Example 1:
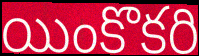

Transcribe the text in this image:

యింకొకరి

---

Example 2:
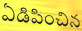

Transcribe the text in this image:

ఏడిపించిన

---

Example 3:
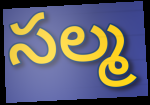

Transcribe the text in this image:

సల్మ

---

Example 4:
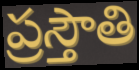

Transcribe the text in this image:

ప్రస్తౌతి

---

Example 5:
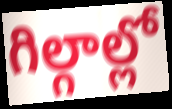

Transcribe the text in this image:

గిల్గాల్లో